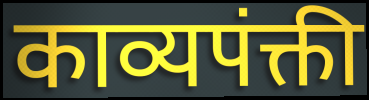
काव्यपंक्ती